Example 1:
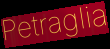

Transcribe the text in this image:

Petraglia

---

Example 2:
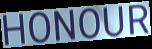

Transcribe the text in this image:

HONOUR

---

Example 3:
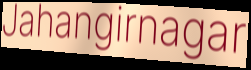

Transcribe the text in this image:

Jahangirnagar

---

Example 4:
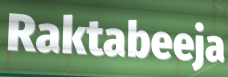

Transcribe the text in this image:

Raktabeeja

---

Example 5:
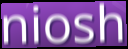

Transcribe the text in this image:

niosh